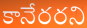
కానేరరని